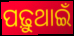
ପଢ଼ୁଥାଇଁ